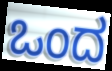
ಒಂದ